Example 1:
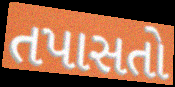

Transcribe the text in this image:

તપાસતો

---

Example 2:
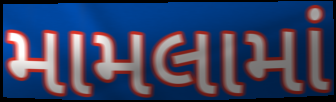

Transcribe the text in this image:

મામલામાં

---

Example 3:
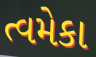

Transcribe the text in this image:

ત્વમેકા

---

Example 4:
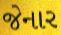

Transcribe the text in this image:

જેનાર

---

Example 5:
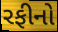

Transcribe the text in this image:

રફીનો